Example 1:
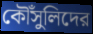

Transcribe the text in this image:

কৌঁসুলিদের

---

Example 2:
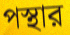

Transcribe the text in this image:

পস্থার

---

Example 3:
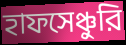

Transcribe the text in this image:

হাফসেঞ্চুরি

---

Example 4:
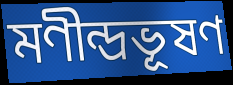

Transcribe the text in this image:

মণীন্দ্রভূষণ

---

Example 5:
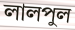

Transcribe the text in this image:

লালপুল